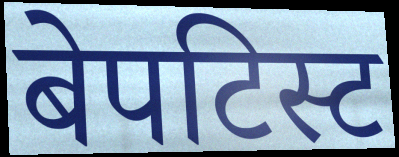
बेपटिस्ट